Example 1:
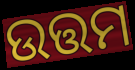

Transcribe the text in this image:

ଉତ୍ତମ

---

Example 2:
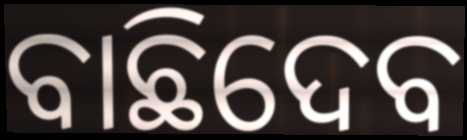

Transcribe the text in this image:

ବାଛିଦେବ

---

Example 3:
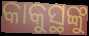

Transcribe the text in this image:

କାକୁସ୍ଥଙ୍କୁ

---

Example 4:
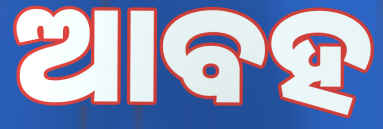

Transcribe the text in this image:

ଆବହ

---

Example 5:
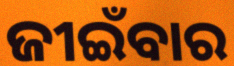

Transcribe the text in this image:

ଜୀଇଁବାର